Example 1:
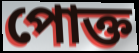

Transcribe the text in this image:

পোক্ত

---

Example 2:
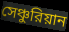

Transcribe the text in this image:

সেঞ্চুরিয়ান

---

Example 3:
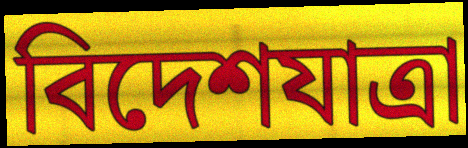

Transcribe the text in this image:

বিদেশযাত্রা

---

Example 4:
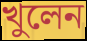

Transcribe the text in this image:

খুলেন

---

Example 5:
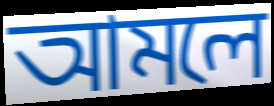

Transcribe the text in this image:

আমলে